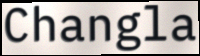
Changla